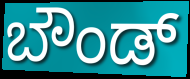
ಬೌಂಡ್